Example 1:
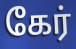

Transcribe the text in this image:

கேர்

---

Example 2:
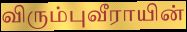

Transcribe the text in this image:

விரும்புவீராயின்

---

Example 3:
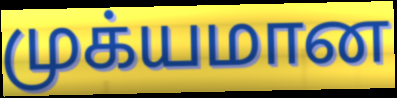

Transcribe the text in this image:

முக்யமான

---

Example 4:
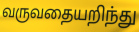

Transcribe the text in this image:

வருவதையறிந்து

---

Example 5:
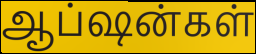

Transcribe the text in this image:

ஆப்ஷன்கள்